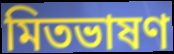
মিতভাষণ